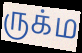
ருக்ம